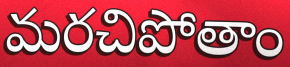
మరచిపోతాం